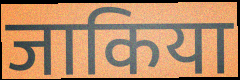
जाकिया